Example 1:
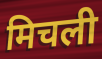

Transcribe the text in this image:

मिचली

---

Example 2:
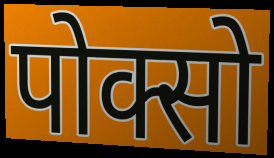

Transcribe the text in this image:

पोक्सो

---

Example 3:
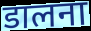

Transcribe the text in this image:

डालना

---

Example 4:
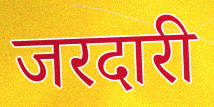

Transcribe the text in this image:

जरदारी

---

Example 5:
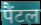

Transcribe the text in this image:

पैंटल